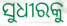
ସୁଧୀରକୁ